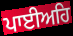
ਪਾਈਅਹਿ